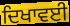
ਦਿਖਾਵਈ